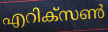
എറിക്സൺ